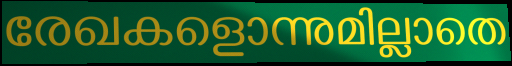
രേഖകളൊന്നുമില്ലാതെ